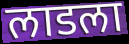
लाडला